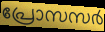
പ്രോസസർ